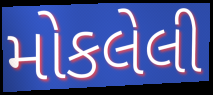
મોકલેલી